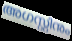
അഗസ്റ്റിനും